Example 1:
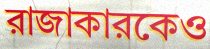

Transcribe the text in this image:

রাজাকারকেও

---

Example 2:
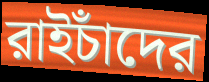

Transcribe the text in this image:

রাইচাঁদের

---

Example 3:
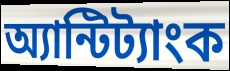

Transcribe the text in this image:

অ্যান্টিট্যাংক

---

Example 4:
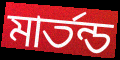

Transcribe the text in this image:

মার্তন্ড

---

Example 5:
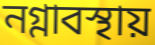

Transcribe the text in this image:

নগ্নাবস্থায়